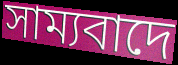
সাম্যবাদে